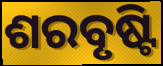
ଶରବୃଷ୍ଟି